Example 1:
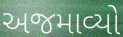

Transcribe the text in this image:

અજમાવ્યો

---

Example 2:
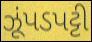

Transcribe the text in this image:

ઝૂંપડપટ્ટી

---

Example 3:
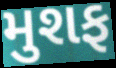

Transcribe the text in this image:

મુશફ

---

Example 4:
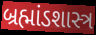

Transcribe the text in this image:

બ્રહ્માંડશાસ્ત્ર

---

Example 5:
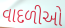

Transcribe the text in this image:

વાદળીઓ